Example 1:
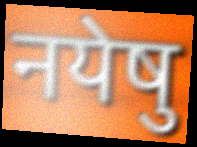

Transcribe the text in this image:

नयेषु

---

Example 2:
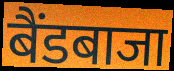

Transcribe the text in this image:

बैंडबाजा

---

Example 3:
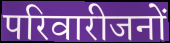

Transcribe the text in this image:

परिवारीजनों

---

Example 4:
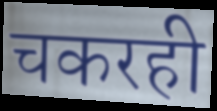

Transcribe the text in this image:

चकरही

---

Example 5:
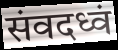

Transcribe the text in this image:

संवदध्वं